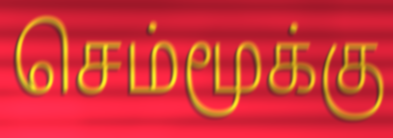
செம்மூக்கு